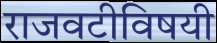
राजवटीविषयी